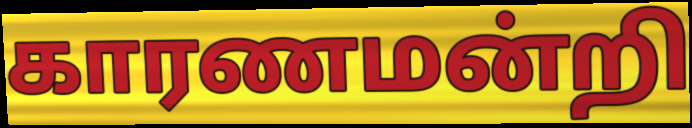
காரணமன்றி